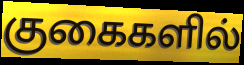
குகைகளில்